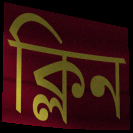
ক্লিন